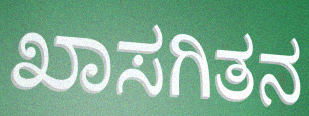
ಖಾಸಗಿತನ